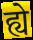
ह्ये